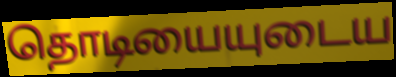
தொடியையுடைய